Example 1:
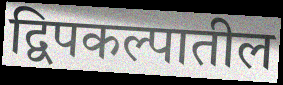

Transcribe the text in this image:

द्विपकल्पातील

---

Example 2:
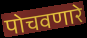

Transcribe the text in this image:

पोचवणारे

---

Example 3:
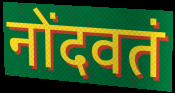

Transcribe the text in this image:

नोंदवतं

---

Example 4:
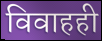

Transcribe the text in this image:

विवाहही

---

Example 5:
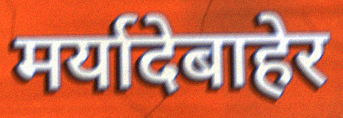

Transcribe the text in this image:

मर्यादेबाहेर